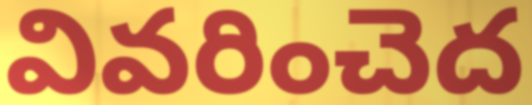
వివరించెద